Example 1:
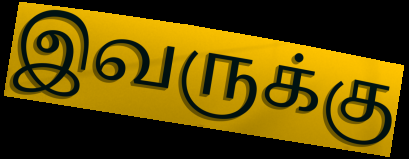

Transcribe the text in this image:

இவருக்கு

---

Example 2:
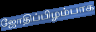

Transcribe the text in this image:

ஜோதிப்பிழம்பாக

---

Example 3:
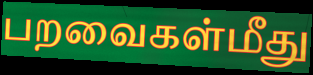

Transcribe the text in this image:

பறவைகள்மீது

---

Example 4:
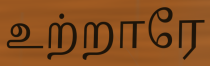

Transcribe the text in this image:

உற்றாரே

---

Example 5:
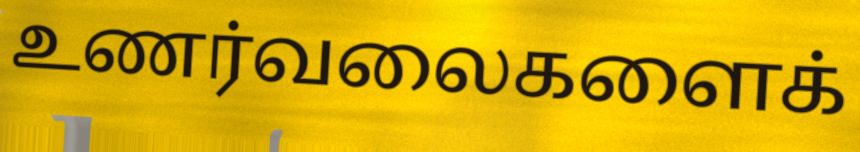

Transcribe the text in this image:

உணர்வலைகளைக்